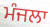
ਮੰਜਲਾ